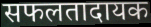
सफलतादायक